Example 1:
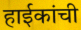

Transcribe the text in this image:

हाईकांची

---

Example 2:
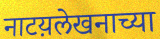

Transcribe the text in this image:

नाटय़लेखनाच्या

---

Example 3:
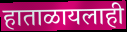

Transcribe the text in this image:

हाताळायलाही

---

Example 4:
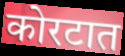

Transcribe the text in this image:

कोरटात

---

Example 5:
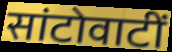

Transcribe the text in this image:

सांटोवाटीं